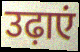
उढ़ाएं